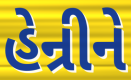
હેન્રીને